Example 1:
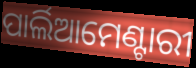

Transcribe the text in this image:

ପାର୍ଲିଆମେଣ୍ଟାରୀ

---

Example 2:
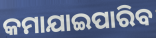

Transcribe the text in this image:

କମାଯାଇପାରିବ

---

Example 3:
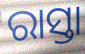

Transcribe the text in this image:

ରାସ୍ତା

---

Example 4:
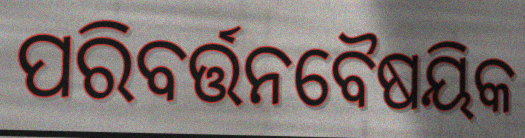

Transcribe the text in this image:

ପରିବର୍ତ୍ତନବୈଷୟିକ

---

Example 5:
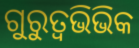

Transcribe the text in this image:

ଗୁରୁତ୍ଵଭିଭିକ